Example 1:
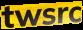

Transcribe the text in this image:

twsrc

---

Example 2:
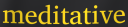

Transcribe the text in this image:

meditative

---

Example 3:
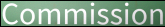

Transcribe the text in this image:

Commission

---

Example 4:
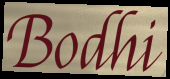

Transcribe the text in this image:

Bodhi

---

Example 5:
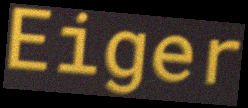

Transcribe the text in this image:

Eiger